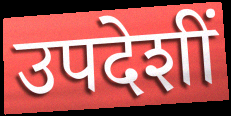
उपदेशीं